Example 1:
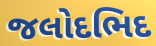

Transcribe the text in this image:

જલોદભિદ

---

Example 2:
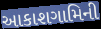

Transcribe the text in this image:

આકાશગામિની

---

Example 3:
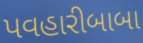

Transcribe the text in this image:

પવહારીબાબા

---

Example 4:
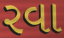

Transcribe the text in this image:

રવા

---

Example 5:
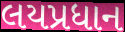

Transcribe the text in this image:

લયપ્રધાન